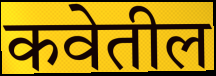
कवेतील